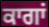
ਕਾਗਾਂ